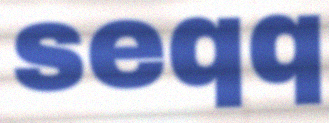
seqq